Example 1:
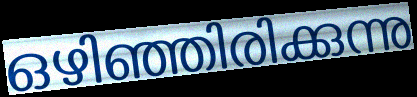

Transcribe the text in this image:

ഒഴിഞ്ഞിരിക്കുന്നു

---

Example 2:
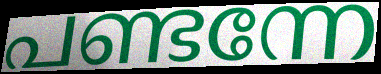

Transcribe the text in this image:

പണ്ടന്നേ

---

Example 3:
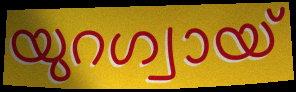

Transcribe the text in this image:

യുറഗ്വായ്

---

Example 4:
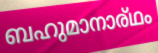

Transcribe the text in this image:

ബഹുമാനാര്ഥം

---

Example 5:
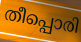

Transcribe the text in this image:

തീപ്പൊരി